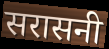
सरासनी